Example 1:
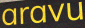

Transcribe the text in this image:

aravu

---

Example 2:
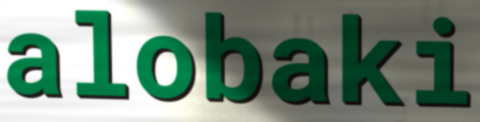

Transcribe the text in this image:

alobaki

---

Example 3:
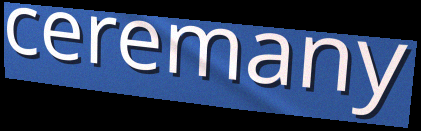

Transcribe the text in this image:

ceremany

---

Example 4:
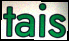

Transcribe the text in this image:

tais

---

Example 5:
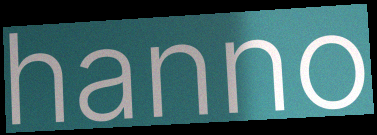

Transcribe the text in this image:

hanno